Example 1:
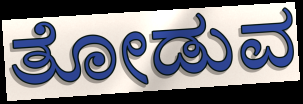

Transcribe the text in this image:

ತೋಡುವ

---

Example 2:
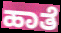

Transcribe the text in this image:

ಹಾತೆ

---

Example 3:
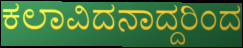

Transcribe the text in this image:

ಕಲಾವಿದನಾದ್ದರಿಂದ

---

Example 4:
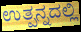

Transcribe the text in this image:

ಉತ್ಪನ್ನದಲ್ಲಿ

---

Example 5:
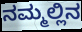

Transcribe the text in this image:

ನಮ್ಮಲ್ಲಿನ